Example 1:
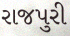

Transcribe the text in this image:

રાજપુરી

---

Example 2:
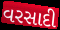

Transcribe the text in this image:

વરસાદી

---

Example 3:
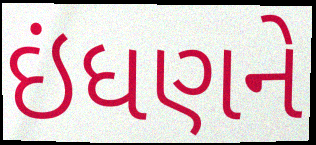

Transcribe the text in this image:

ઇંધણને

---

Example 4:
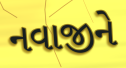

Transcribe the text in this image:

નવાજીને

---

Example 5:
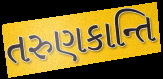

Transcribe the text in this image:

તરુણકાન્તિ